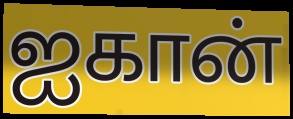
ஐகான்